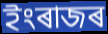
ইংৰাজৰ